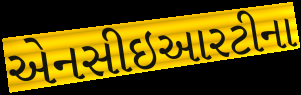
એનસીઇઆરટીના